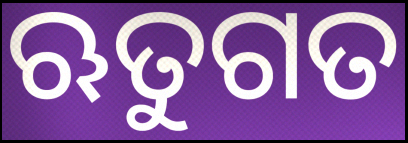
ଋତୁଗତ